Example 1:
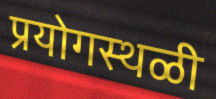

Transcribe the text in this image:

प्रयोगस्थळी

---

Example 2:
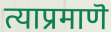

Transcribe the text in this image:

त्याप्रमाणॆ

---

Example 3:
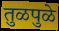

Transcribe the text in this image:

तुळपुळे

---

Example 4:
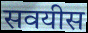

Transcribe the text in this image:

सवयीस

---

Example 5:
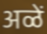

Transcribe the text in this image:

अळें